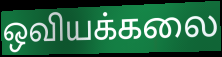
ஒவியக்கலை